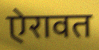
ऐरावत